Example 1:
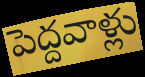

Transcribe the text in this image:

పెద్దవాళ్లు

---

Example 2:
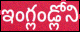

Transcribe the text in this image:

ఇంగ్లండ్లోని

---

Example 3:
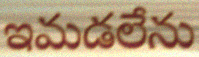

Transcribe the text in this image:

ఇమడలేను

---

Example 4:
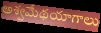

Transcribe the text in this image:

అశ్వమేథయాగాలు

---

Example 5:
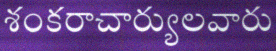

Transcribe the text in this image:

శంకరాచార్యులవారు